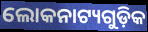
ଲୋକନାଟ୍ୟଗୁଡ଼ିକ